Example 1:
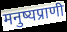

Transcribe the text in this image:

मनुष्यप्राणी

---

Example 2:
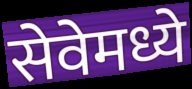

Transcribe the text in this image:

सेवेमध्ये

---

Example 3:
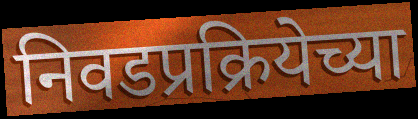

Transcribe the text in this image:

निवडप्रक्रियेच्या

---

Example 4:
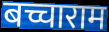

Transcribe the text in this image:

बच्चाराम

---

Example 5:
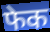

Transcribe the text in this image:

फेक